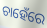
ଚାହେଁରେ